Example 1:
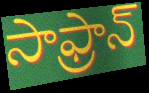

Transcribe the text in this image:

సాఫ్రాన్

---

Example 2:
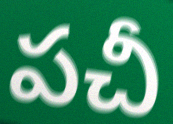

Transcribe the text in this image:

పచీ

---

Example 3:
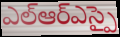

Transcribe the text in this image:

ఎల్ఆర్ఎస్పై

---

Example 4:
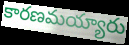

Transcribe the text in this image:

కారణమయ్యారు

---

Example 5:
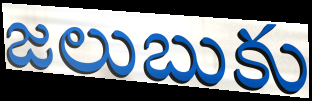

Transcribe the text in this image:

జలుబుకు